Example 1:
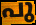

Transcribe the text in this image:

പു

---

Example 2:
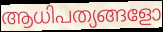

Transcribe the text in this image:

ആധിപത്യങ്ങളോ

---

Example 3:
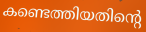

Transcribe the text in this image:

കണ്ടെത്തിയതിന്റെ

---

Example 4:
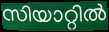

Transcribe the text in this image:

സിയാറ്റിൽ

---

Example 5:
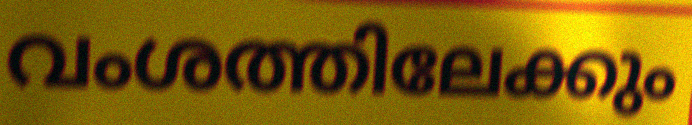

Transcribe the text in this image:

വംശത്തിലേക്കും